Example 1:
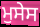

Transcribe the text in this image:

ਮੁਸੇਸ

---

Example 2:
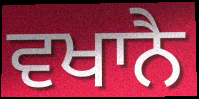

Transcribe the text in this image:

ਵਖਾਨੈ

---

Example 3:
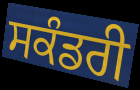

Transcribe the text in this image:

ਸਕੰਡਰੀ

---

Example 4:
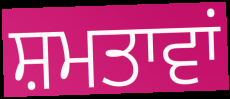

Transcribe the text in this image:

ਸ਼ਮਤਾਵਾਂ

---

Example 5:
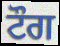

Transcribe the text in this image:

ਟੌਗ